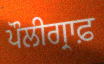
ਪੌਲੀਗ੍ਰਾਫ਼